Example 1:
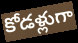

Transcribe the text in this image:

కోడళ్లుగా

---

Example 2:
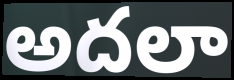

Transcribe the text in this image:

అదలా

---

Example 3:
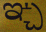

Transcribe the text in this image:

ఞ్చ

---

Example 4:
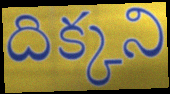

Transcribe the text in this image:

దిక్కని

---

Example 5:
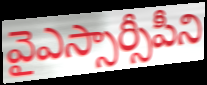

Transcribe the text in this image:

వైఎస్సార్సీపీని